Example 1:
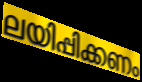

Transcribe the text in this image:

ലയിപ്പിക്കണം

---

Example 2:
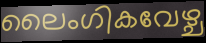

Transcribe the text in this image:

ലൈംഗികവേഴ്ച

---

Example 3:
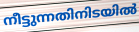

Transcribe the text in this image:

നീട്ടുന്നതിനിടയിൽ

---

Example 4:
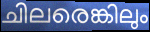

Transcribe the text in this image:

ചിലരെങ്കിലും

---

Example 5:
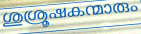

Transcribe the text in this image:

ശുശ്രൂഷകന്മാരും